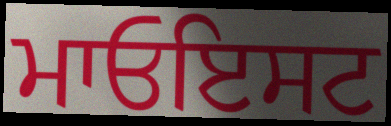
ਮਾਓਇਸਟ